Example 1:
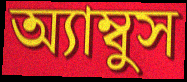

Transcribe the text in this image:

অ্যাম্বুস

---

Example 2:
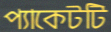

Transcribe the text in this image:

প্যাকেটটি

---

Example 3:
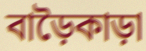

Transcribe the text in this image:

বাড়ৈকাড়া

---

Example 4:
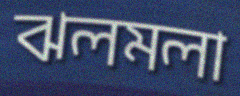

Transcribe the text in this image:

ঝলমলা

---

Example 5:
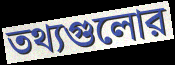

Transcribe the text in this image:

তথ্যগুলোর